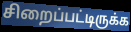
சிறைப்பட்டிருக்க